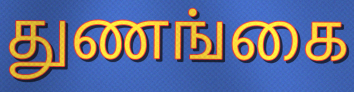
துணங்கை